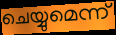
ചെയ്യുമെന്ന്